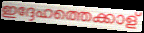
ഇദ്ദേഹത്തെക്കാള്